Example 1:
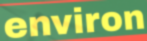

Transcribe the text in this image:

environ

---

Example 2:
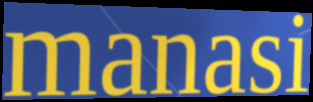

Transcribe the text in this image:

manasi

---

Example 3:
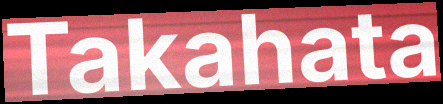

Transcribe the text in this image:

Takahata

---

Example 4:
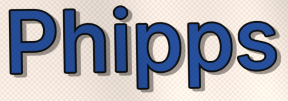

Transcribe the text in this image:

Phipps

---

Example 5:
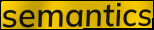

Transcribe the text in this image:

semantics